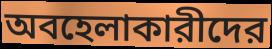
অবহেলাকারীদের